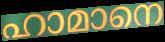
ഹാമാനെ